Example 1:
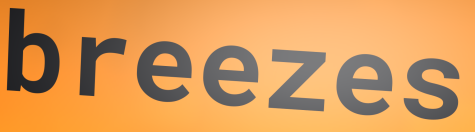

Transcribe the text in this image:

breezes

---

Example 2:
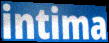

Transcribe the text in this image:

intima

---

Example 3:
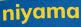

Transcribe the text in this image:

niyama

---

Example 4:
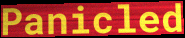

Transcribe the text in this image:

Panicled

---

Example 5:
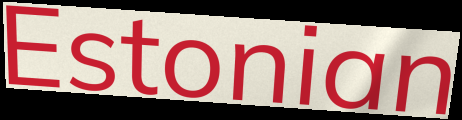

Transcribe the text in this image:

Estonian